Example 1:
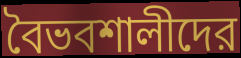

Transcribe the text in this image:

বৈভবশালীদের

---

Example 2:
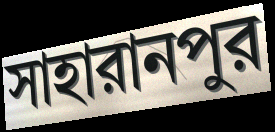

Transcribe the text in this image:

সাহারানপুর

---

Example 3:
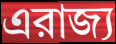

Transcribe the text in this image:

এরাজ্য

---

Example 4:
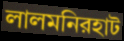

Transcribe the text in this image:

লালমনিরহাট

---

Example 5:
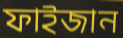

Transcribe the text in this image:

ফাইজান